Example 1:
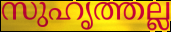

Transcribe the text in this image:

സുഹൃത്തല്ല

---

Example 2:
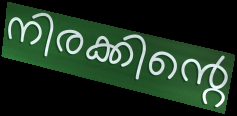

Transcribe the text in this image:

നിരക്കിന്റെ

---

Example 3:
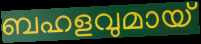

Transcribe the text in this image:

ബഹളവുമായ്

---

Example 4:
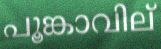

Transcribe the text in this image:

പൂങ്കാവില്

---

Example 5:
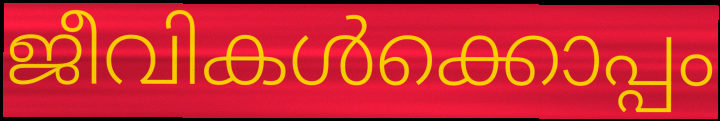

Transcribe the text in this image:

ജീവികൾക്കൊപ്പം